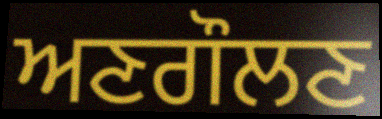
ਅਣਗੌਲਣ